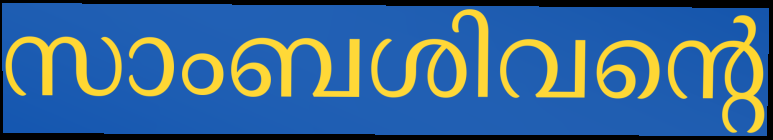
സാംബശിവന്റെ